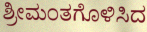
ಶ್ರೀಮಂತಗೊಳಿಸಿದ